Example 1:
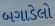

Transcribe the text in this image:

બગાડેલો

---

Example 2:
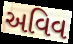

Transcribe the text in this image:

અવિવ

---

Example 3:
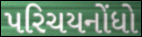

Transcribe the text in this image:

પરિચયનોંધો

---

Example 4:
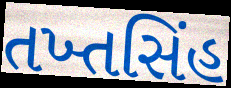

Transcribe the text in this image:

તખ્તસિંહ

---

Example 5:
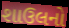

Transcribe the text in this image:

શાઉલનો